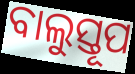
ବାଲୁସ୍ତୂପ